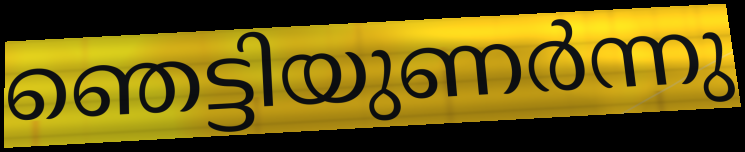
ഞെട്ടിയുണർന്നു